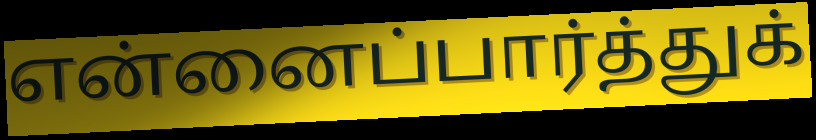
என்னைப்பார்த்துக்